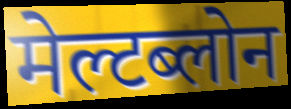
मेल्टब्लोन